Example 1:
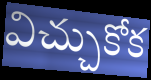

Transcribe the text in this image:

విచ్చుకోక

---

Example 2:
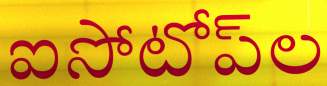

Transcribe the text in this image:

ఐసోటోప్‌ల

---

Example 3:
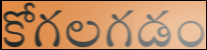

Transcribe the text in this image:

కోగలగడం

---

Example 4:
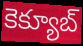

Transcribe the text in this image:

కెక్యూబ్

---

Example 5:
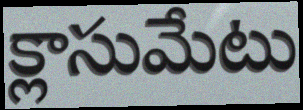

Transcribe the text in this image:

క్లాసుమేటు